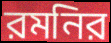
রমনির